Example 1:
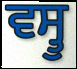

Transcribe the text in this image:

ਵਸ੍ਤੁ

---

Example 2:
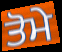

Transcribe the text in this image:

ਤੋਮੇ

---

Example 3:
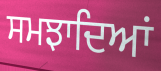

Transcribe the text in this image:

ਸਮਝਾਦਿਆਂ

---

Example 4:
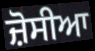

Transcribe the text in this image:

ਜ਼ੋਸੀਆ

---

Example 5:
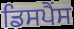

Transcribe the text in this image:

ਡਿਸਪੈਂਸ